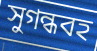
সুগন্ধবহ